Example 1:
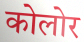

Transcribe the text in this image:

कोलोर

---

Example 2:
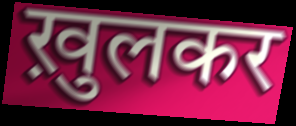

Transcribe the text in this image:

ख़ुलकर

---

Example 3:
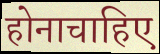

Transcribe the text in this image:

होनाचाहिए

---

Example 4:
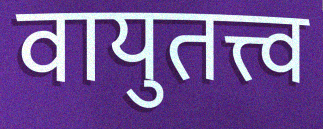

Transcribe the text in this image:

वायुतत्त्व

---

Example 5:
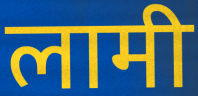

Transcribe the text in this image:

लामी